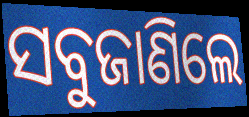
ସବୁଜାଣିଲେ